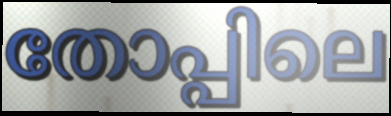
തോപ്പിലെ